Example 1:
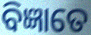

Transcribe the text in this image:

ବିଜ୍ଞାତେ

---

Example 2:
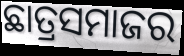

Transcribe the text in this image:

ଛାତ୍ରସମାଜର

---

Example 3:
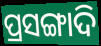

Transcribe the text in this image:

ପ୍ରସଙ୍ଗାଦି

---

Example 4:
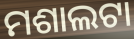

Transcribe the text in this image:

ମଶାଲଟା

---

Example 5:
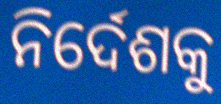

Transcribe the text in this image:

ନିର୍ଦେଶକୁ